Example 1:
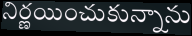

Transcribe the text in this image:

నిర్ణయించుకున్నాను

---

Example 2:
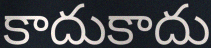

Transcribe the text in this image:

కాదుకాదు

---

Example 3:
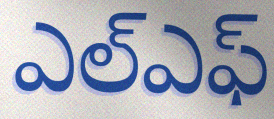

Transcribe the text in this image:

ఎల్ఎఫ్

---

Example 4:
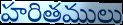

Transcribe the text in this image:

హరితములు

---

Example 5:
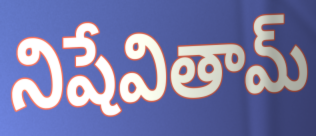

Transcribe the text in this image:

నిషేవితామ్